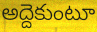
అద్దెకుంటూ